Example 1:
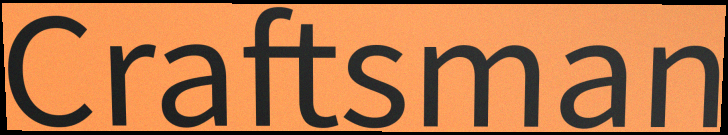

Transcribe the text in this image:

Craftsman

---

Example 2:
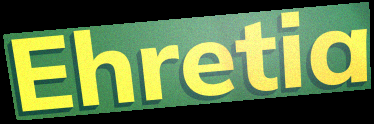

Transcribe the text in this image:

Ehretia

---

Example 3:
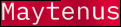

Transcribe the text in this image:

Maytenus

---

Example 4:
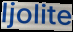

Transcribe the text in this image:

Ijolite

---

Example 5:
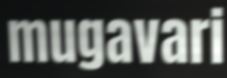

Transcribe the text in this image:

mugavari